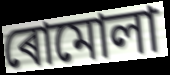
ৰোমোলা